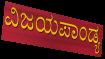
ವಿಜಯಪಾಂಡ್ಯ